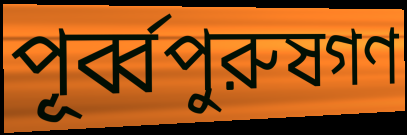
পূর্ব্বপুরুষগণ